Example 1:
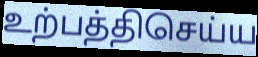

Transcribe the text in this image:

உற்பத்திசெய்ய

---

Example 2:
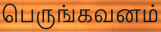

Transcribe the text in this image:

பெருங்கவனம்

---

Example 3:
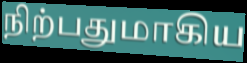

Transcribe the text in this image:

நிற்பதுமாகிய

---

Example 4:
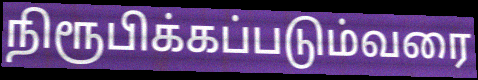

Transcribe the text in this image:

நிரூபிக்கப்படும்வரை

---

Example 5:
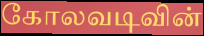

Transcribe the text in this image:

கோலவடிவின்